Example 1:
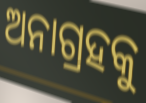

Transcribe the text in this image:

ଅନାଗ୍ରହକୁ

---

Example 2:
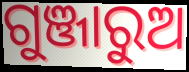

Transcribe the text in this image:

ଗୁଞ୍ଜାରୁଅ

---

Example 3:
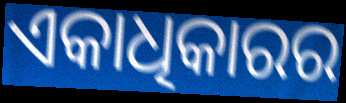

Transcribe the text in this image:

ଏକାଧିକାରର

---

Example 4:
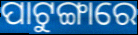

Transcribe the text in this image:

ପାଟୁଙ୍ଗାରେ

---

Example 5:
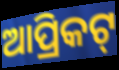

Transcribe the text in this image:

ଆପ୍ରିକଟ୍